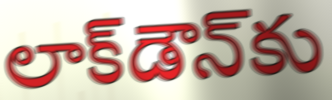
లాక్‌డౌన్‌కు